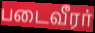
படைவீரர்